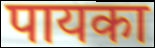
पायका